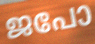
ജപോ